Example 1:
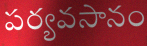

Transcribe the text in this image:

పర్యవసానం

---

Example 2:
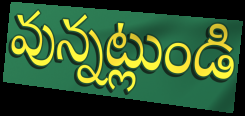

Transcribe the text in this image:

వున్నట్లుండి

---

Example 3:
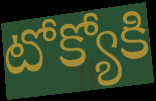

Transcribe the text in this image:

టోక్యోకి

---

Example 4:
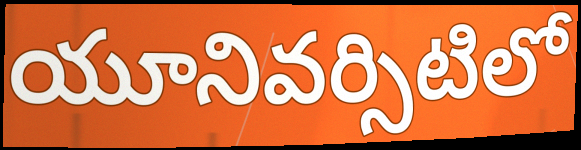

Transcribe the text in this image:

యూనివర్సిటిలో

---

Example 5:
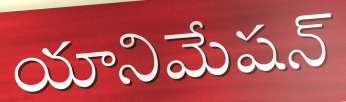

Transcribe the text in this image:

యానిమేషన్